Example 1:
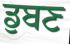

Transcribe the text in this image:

ਡੁਬਣ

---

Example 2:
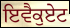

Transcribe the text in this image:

ਇਵੈਕੁਏਟ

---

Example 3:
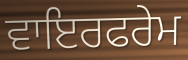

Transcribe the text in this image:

ਵਾਇਰਫਰੇਮ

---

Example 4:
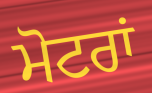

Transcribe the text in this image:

ਮੋਟਰਾਂ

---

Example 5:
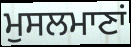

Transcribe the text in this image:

ਮੁਸਲਮਾਣਾਂ